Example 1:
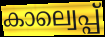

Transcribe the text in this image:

കാല്വെപ്പ്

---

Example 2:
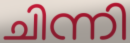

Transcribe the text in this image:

ചിന്നി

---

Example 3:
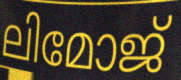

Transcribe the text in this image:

ലിമോജ്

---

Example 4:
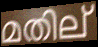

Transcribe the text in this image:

മതില്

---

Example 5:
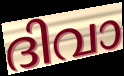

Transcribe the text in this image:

ദിവാ